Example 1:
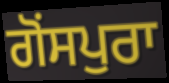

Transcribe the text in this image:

ਗੋਂਸਪੁਰਾ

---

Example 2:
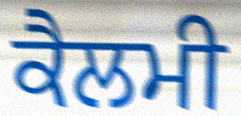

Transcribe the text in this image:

ਕੈਲਮੀ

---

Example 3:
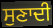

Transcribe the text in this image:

ਸੁਣਾਦੀ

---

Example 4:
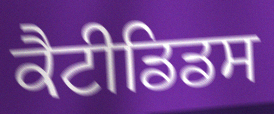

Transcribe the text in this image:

ਕੈਟੀਡਿਡਸ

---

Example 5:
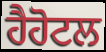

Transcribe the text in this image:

ਹੈਹੋਟਲ